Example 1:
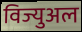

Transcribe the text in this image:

विज्युअल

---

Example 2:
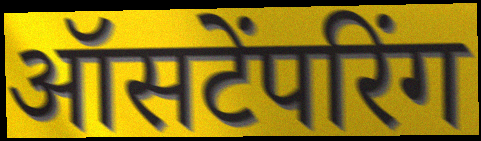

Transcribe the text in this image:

ऑसटेंपरिंग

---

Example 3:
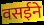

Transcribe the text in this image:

वसईने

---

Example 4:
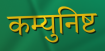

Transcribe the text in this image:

कम्युनिष्ट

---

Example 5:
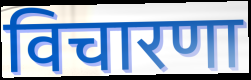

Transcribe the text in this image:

विचारणा